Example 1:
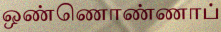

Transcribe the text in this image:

ஒண்ணொண்ணாப்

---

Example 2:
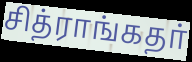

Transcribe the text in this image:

சித்ராங்கதர்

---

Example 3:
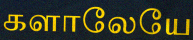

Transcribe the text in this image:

களாலேயே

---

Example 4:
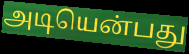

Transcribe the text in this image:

அடியென்பது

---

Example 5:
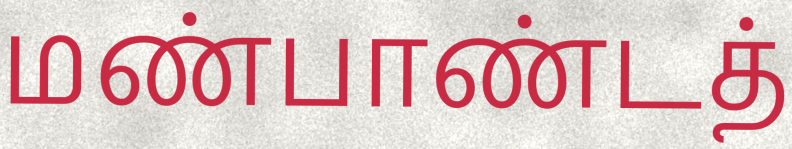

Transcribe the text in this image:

மண்பாண்டத்